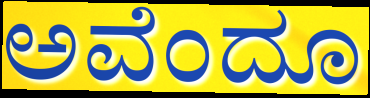
ಅವೆಂದೂ